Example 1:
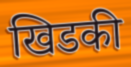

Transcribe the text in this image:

खिडकी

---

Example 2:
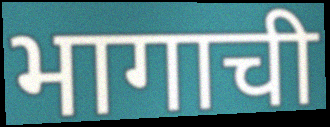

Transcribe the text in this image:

भागाची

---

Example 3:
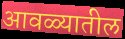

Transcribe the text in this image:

आवळ्यातील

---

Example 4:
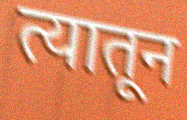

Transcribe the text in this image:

त्यातून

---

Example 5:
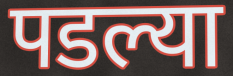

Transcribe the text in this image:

पडल्या